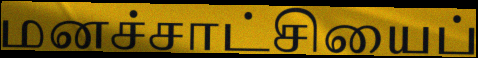
மனச்சாட்சியைப்